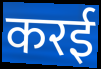
करई